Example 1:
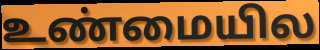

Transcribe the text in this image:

உண்மையில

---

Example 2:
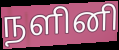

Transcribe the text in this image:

நளினி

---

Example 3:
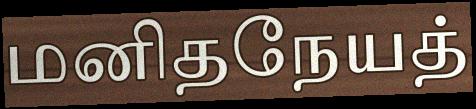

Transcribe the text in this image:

மனிதநேயத்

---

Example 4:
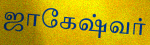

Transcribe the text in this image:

ஜாகேஷ்வர்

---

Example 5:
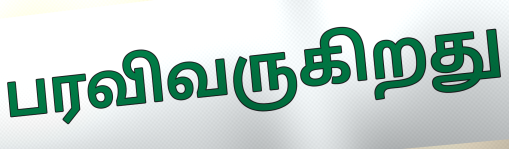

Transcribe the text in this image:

பரவிவருகிறது